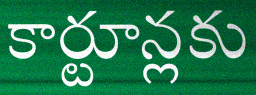
కార్టూన్లకు